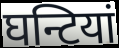
घन्टियां